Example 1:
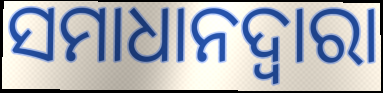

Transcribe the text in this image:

ସମାଧାନଦ୍ୱାରା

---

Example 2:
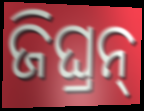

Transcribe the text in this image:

ଜିଘ୍ରନ୍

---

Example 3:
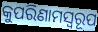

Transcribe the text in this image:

କୁପରିଣାମସ୍ୱରୂପ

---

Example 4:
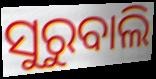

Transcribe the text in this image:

ସୁରୁବାଲି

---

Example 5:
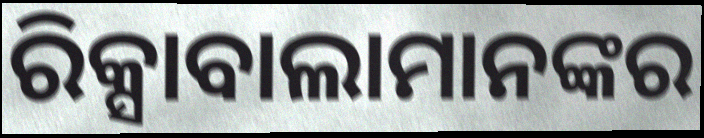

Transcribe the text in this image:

ରିକ୍ସାବାଲାମାନଙ୍କର